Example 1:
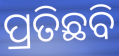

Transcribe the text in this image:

ପ୍ରତିଛବି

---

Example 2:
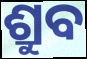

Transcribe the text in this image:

ଶ୍ରୁବ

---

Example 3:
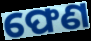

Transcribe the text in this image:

ଫେଣ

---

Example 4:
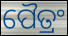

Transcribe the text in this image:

ପୈତ୍ରଂ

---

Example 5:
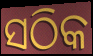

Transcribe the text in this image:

ସଠିକ